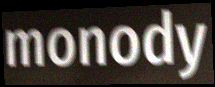
monody